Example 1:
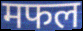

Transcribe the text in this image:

मफल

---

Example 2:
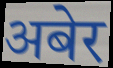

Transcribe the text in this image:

अबेर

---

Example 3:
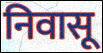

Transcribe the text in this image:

निवासू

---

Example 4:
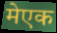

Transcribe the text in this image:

मेएक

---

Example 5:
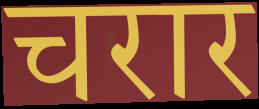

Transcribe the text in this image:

चरार